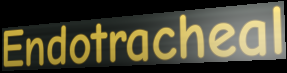
Endotracheal